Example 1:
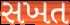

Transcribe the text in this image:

સખત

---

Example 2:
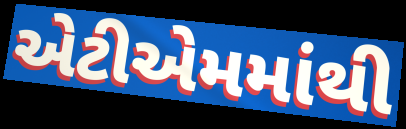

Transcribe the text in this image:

એટીએમમાંથી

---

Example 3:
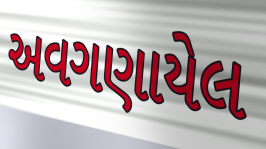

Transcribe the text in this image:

અવગણાયેલ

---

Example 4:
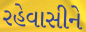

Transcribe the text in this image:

રહેવાસીને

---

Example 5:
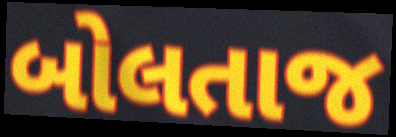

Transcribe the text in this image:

બોલતાજ